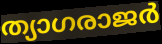
ത്യാഗരാജർ